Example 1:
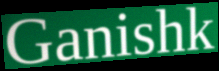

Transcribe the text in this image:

Ganishk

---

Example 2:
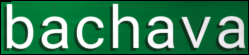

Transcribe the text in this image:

bachava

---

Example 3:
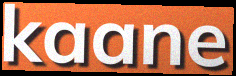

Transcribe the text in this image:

kaane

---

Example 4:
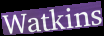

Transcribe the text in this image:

Watkins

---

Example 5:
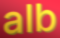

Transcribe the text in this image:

alb